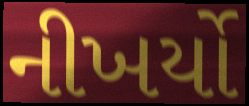
નીખર્યો